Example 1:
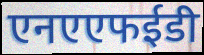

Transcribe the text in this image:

एनएएफईडी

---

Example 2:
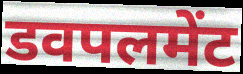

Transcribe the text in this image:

डवपलमेंट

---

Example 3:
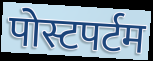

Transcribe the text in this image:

पोस्टपर्टम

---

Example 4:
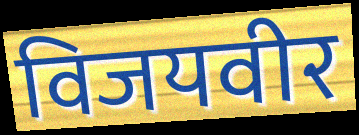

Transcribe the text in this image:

विजयवीर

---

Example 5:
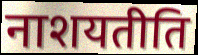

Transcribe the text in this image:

नाशयतीति